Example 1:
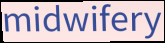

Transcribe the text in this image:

midwifery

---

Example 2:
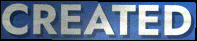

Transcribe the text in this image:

CREATED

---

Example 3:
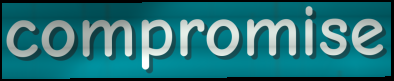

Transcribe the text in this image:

compromise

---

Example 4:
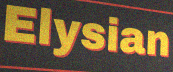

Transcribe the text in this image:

Elysian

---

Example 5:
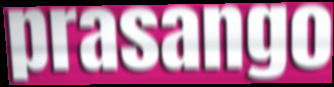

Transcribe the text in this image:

prasango